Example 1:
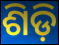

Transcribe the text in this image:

ଶିଡ଼ି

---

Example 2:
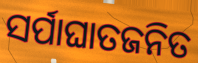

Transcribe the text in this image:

ସର୍ପାଘାତଜନିତ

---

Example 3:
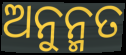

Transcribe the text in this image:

ଅନୁନ୍ମତ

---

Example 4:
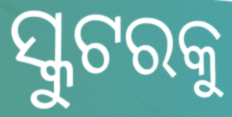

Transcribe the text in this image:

ସ୍କୁଟରକୁ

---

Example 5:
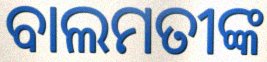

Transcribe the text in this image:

ବାଲମତୀଙ୍କ